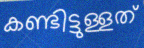
കണ്ടിട്ടുള്ളത്